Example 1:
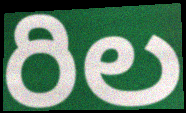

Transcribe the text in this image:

రిల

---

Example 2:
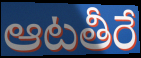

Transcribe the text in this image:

ఆటతీరే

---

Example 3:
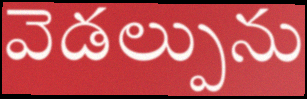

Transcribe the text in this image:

వెడల్పును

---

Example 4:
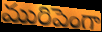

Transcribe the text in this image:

మురిపెంగా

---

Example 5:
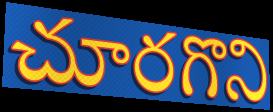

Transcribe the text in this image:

చూరగొని